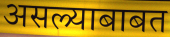
असल्याबाबत